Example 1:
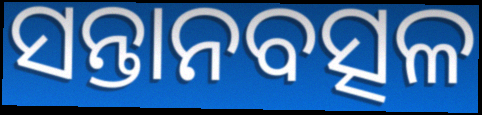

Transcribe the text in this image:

ସନ୍ତାନବତ୍ସଳ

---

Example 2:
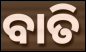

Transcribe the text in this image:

ବାତି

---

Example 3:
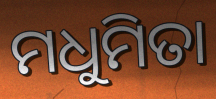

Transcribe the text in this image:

ମଧୁମିତା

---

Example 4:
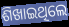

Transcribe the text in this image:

ଶିଖାଇଥିଲେ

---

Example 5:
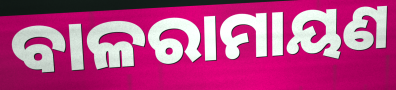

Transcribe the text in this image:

ବାଳରାମାୟଣ